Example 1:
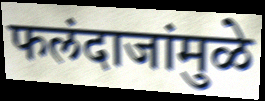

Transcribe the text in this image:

फलंदाजांमुळे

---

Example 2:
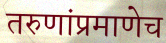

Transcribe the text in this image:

तरुणांप्रमाणेच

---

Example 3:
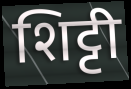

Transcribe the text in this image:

शिट्टी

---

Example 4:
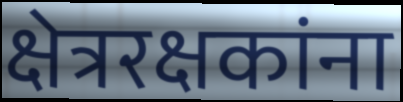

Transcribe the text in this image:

क्षेत्ररक्षकांना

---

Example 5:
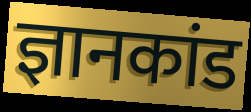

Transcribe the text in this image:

ज्ञानकांड